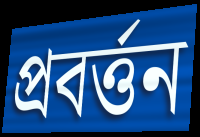
প্রবর্ত্তন